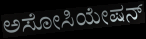
ಅಸೋಸಿಯೇಷನ್